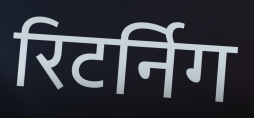
रिटर्निग